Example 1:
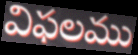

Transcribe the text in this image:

విఫలము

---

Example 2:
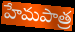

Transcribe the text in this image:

హేమపాత్ర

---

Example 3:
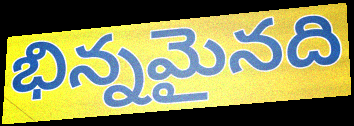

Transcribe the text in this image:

భిన్నమైనది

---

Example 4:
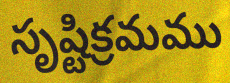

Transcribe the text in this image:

సృష్టిక్రమము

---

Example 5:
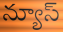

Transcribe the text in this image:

న్యూస్